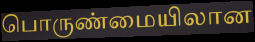
பொருண்மையிலான